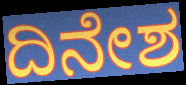
ದಿನೇಶ